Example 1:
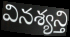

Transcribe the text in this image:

వినశ్యన్తి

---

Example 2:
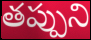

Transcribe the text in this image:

తప్పుని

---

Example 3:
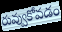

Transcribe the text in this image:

రువ్వుకోవడం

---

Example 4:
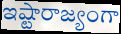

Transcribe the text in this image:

ఇష్టారాజ్యంగా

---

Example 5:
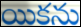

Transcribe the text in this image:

యికను